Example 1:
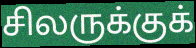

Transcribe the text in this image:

சிலருக்குக்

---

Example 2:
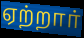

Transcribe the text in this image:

ஏற்றார்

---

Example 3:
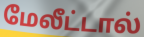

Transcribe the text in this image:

மேலீட்டால்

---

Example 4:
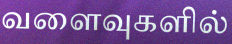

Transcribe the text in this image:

வளைவுகளில்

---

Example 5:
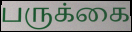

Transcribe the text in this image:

பருக்கை